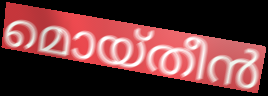
മൊയ്തീൻ